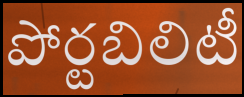
పోర్టబిలిటీ